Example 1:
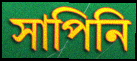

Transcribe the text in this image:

সাপিনি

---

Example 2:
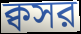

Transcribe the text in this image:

ক্বসর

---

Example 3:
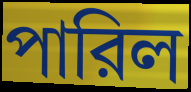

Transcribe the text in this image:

পারিল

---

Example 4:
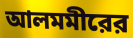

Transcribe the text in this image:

আলমমীরের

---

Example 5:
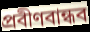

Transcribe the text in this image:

প্রবীণবান্ধব